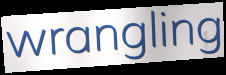
wrangling